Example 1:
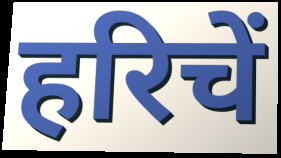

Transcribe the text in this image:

हरिचें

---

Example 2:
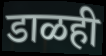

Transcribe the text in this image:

डाळही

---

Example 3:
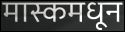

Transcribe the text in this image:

मास्कमधून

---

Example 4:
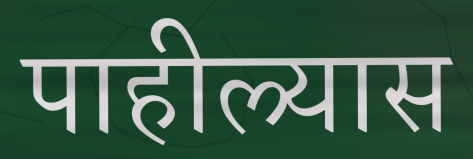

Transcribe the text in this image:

पाहील्यास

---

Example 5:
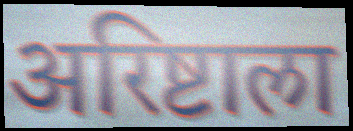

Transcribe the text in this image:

अरिष्टाला